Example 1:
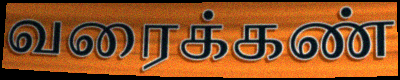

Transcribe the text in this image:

வரைக்கண்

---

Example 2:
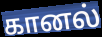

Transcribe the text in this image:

கானல்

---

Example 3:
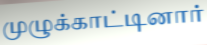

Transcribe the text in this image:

முழுக்காட்டினார்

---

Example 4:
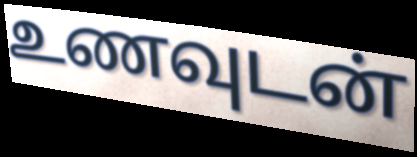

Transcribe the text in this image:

உணவுடன்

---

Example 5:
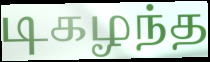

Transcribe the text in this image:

டிகழந்த